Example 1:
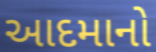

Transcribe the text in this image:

આદમાનો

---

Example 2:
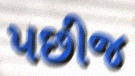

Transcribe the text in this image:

પછીજ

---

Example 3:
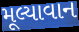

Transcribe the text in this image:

મૂલ્યાવાન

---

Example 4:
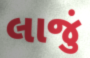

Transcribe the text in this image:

લાજું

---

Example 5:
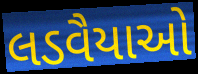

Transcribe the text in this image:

લડવૈયાઓ